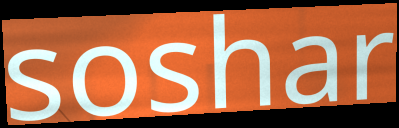
soshar